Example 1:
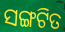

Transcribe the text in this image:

ସଙ୍ଗଟିତ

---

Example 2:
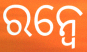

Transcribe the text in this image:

ରନ୍ୱେ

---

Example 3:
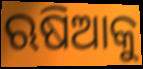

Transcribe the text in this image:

ଋଷିଆକୁ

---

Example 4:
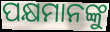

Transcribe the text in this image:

ପକ୍ଷମାନଙ୍କୁ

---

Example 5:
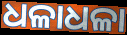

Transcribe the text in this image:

ଧଳାଧଳା